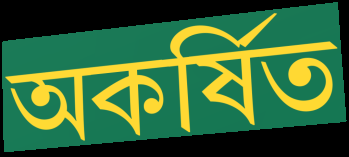
অকর্ষিত